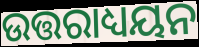
ଉତ୍ତରାଧ୍ୟୟନ